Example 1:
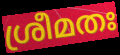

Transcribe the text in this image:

ശ്രീമതഃ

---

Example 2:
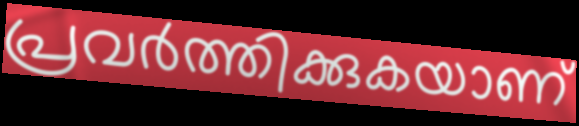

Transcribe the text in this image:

പ്രവർത്തിക്കുകയാണ്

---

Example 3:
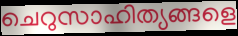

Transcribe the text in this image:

ചെറുസാഹിത്യങ്ങളെ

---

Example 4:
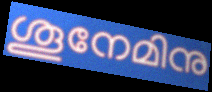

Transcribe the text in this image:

ശൂനേമിനു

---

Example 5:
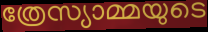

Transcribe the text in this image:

ത്രേസ്യാമ്മയുടെ